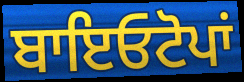
ਬਾਇਓਟੋਪਾਂ